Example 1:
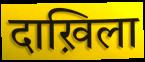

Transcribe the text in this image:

दाख़िला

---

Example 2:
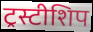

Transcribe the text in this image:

ट्रस्टीशिप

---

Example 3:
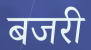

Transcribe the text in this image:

बजरी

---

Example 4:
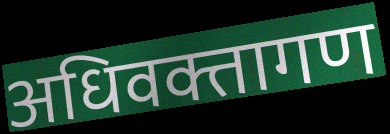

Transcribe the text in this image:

अधिवक्तागण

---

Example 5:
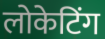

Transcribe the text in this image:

लोकेटिंग